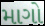
માગો